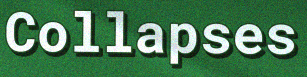
Collapses